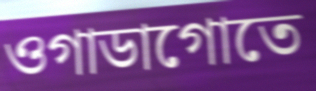
ওগাডাগোতে